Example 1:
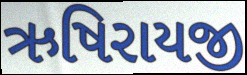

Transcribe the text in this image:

ઋષિરાયજી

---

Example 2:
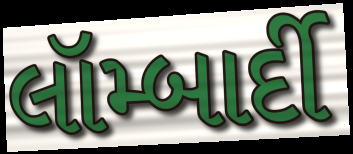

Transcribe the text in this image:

લૉમ્બાર્દી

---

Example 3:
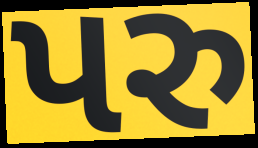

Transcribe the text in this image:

પરુ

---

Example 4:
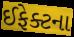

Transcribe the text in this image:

ઈફેક્ટના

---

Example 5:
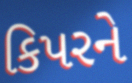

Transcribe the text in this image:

કિપરને